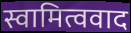
स्वामित्ववाद